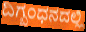
ದಿಗ್ಬಂಧನದಲ್ಲಿ